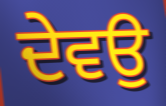
ਦੇਵਉ